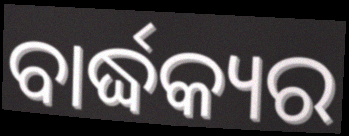
ବାର୍ଦ୍ଧକ୍ୟର